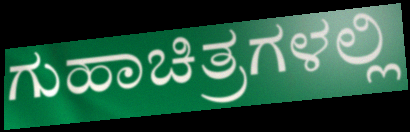
ಗುಹಾಚಿತ್ರಗಳಲ್ಲಿ